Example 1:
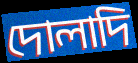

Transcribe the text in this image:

দোলাদি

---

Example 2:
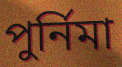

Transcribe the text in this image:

পুর্নিমা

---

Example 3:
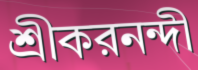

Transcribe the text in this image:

শ্রীকরনন্দী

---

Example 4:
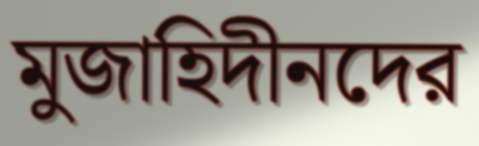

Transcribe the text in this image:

মুজাহিদীনদের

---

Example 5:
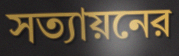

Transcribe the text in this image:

সত্যায়নের